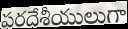
పరదేశీయులుగా